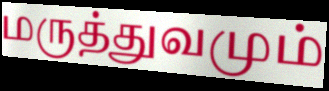
மருத்துவமும்